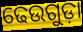
ଢେଉଗୁଡ଼ା